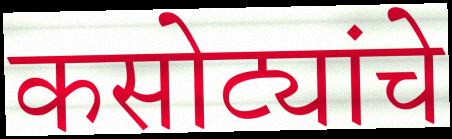
कसोट्यांचे